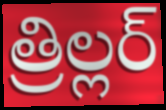
త్రిల్లర్